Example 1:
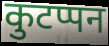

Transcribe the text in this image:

कुटप्पन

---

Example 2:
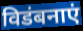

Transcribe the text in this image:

विडंबनाएं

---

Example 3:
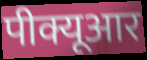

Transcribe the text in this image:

पीक्यूआर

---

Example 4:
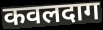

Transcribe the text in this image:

कवलदाग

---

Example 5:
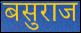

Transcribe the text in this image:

बसुराज